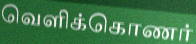
வெளிக்கொணர்